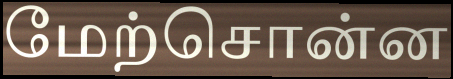
மேற்சொன்ன